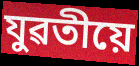
যুৱতীয়ে